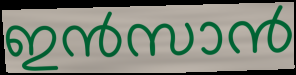
ഇൻസാൻ